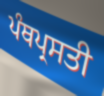
ਪੰਥਪ੍ਰਸਤੀ